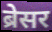
ब्रेसर